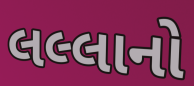
લલ્લાનો